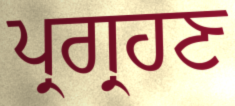
ਪ੍ਰਗ੍ਰਹਣ